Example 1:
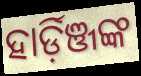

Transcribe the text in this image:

ହାର୍ଡ଼ିଞ୍ଜଙ୍କ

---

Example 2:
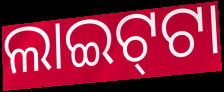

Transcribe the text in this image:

ଲାଇଟ୍‍ଟା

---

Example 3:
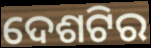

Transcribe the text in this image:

ଦେଶଟିର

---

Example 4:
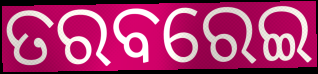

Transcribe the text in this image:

ତରବରେଇ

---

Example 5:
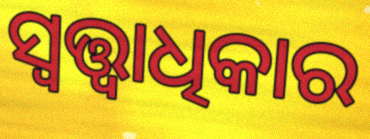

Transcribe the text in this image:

ସ୍ୱତ୍ତ୍ୱାଧିକାର